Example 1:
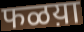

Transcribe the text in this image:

फळय़ा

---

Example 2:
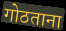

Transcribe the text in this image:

गोठताना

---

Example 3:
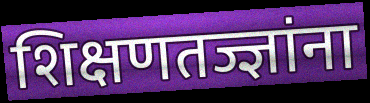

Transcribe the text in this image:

शिक्षणतज्ज्ञांना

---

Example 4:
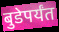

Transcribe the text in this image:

बुडेपर्यंत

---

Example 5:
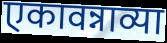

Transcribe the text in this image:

एकावन्नाव्या